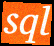
sql